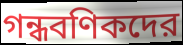
গন্ধবণিকদের